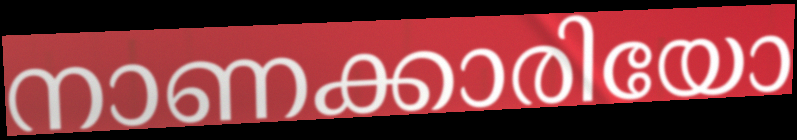
നാണക്കാരിയോ